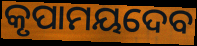
କୃପାମୟଦେବ